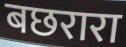
बछरारा